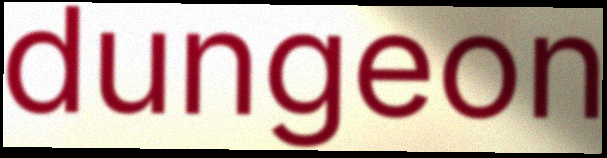
dungeon